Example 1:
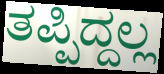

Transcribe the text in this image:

ತಪ್ಪಿದ್ದಲ್ಲ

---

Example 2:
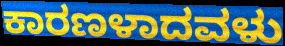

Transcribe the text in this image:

ಕಾರಣಳಾದವಳು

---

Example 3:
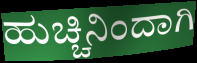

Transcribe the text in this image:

ಹುಚ್ಚಿನಿಂದಾಗಿ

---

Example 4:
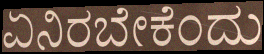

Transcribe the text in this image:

ಏನಿರಬೇಕೆಂದು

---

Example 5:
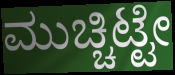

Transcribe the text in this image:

ಮುಚ್ಚಿಟ್ಟೇ